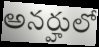
అనర్హులో